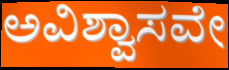
ಅವಿಶ್ವಾಸವೇ